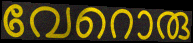
വേറൊരു